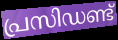
പ്രസിഡണ്ട്